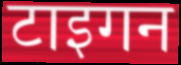
टाइगन